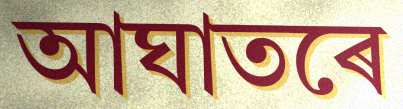
আঘাতৰে